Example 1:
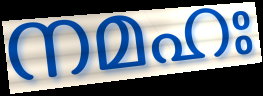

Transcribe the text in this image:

നമഹഃ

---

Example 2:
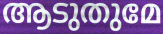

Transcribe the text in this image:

ആടുതുമേ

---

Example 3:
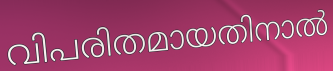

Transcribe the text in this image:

വിപരിതമായതിനാൽ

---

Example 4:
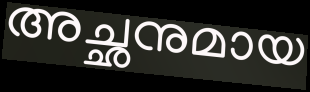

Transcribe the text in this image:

അച്ഛനുമായ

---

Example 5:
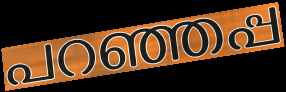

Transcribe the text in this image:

പറഞ്ഞപ്പ